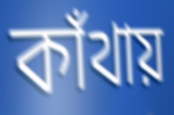
কাঁথায়